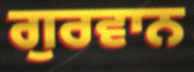
ਗੁਰਵਾਨ